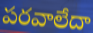
పరవాలేదా